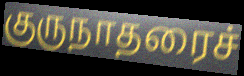
குருநாதரைச்